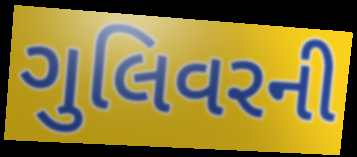
ગુલિવરની